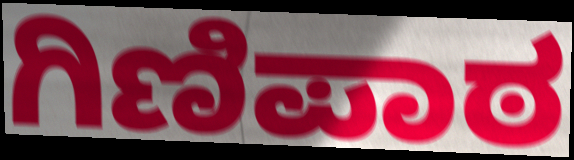
ಗಿಣಿಪಾಠ